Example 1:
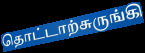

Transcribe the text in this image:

தொட்டாற்சுருங்கி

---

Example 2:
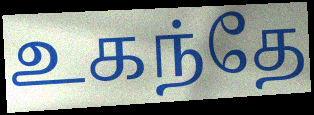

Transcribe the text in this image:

உகந்தே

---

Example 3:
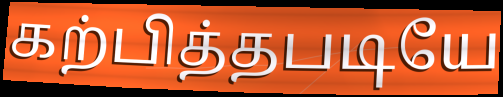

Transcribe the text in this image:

கற்பித்தபடியே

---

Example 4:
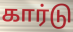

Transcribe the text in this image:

கார்டு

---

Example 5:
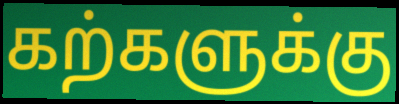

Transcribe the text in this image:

கற்களுக்கு